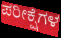
ಪರೀಕ್ಷೆಗಳ